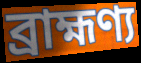
ব্রাহ্মণ্য